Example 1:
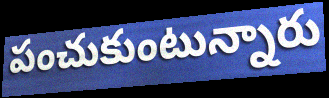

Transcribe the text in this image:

పంచుకుంటున్నారు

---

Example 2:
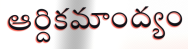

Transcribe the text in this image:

ఆర్దికమాంద్యం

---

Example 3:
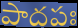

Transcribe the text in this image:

పాదపః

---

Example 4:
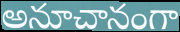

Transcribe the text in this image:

అనూచానంగా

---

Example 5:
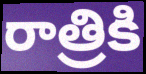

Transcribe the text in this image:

రాత్రికి